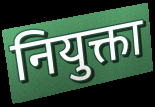
नियुक्ता